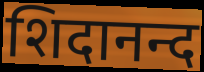
शिदानन्द